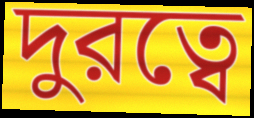
দুরত্বে